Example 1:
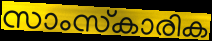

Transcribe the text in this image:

സാംസ്‌കാരിക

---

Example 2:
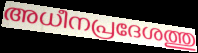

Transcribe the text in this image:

അധീനപ്രദേശത്തു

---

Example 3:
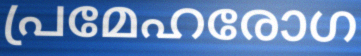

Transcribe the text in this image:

പ്രമേഹരോഗ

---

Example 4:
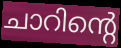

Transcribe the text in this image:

ചാറിന്റെ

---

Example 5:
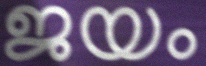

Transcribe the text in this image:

ജയം